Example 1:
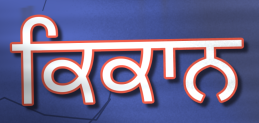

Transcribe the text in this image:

ਕਿਕਾਨ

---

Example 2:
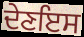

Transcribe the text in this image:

ਦੇਣਇਸ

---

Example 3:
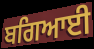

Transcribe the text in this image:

ਬਗਿਆਈ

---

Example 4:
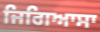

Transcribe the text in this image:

ਜਿਗਿਆਸਾ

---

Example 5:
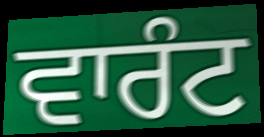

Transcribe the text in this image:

ਵਾਰੰਟ